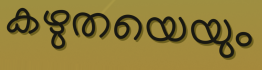
കഴുതയെയും